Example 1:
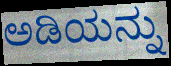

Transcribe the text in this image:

ಅಡಿಯನ್ನು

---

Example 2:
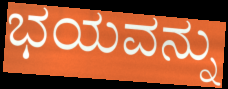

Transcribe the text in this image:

ಭಯವನ್ನು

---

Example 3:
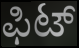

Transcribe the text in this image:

ಫಿಟ್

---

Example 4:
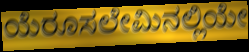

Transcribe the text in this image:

ಯೆರೂಸಲೇಮಿನಲ್ಲಿಯೇ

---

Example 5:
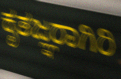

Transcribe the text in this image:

ಕೃತಜ್ಞರಾಗಿರಿ